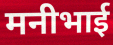
मनीभाई